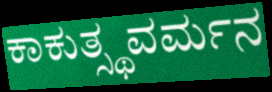
ಕಾಕುತ್ಸ್ಥವರ್ಮನ